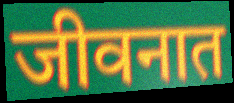
जीवनात